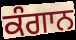
ਕੰਗਾਨ